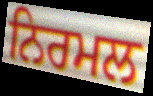
ਨਿਰਮਲ